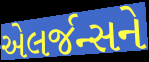
એલર્જન્સને